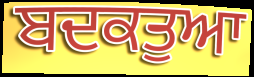
ਬਦਕਤੁਆ